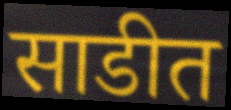
साडीत